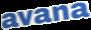
avana